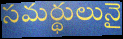
సమర్థులునై